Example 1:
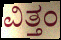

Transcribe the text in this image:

ವಿತ್ತಂ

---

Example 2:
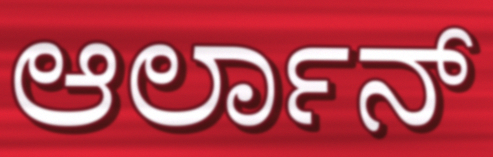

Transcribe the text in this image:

ಆರ್ಲಾನ್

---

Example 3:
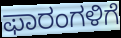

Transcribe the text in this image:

ಫಾರಂಗಳಿಗೆ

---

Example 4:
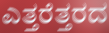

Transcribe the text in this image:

ಎತ್ತರೆತ್ತರದ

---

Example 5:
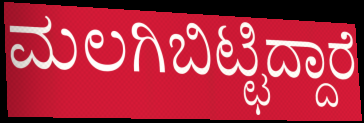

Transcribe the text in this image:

ಮಲಗಿಬಿಟ್ಟಿದ್ದಾರೆ